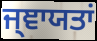
ਜ੍ਞਾਯਤਾਂ